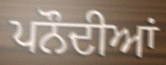
ਪਨੌਦੀਆਂ